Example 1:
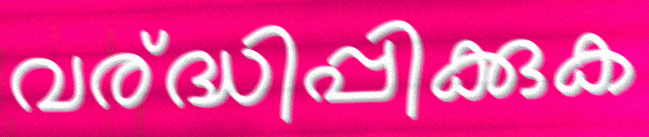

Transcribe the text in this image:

വര്ദ്ധിപ്പിക്കുക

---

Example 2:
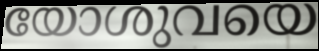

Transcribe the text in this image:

യോശുവയെ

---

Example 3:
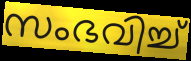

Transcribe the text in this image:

സംഭവിച്ച്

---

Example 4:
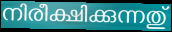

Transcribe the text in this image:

നിരീക്ഷിക്കുന്നതു്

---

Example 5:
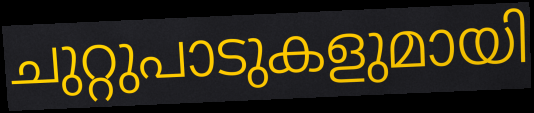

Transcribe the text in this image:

ചുറ്റുപാടുകളുമായി